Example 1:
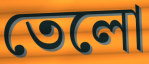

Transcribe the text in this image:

তেলো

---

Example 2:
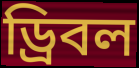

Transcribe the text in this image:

ড্রিবল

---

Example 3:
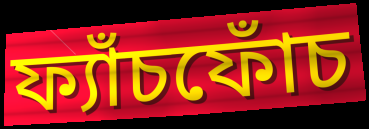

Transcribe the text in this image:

ফ্যাঁচফোঁচ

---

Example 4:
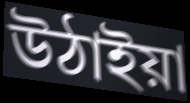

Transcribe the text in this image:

উঠাইয়া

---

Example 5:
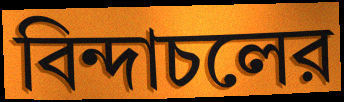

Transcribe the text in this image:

বিন্দাচলের